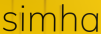
simha